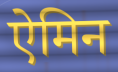
ऐमिन